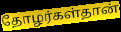
தோழர்கள்தான்